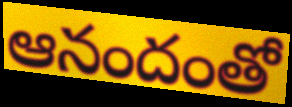
ఆనందంతో